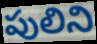
పులిని